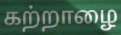
கற்றாழை